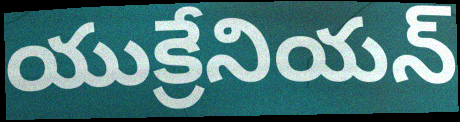
యుక్రేనియన్